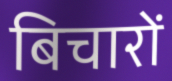
बिचारों